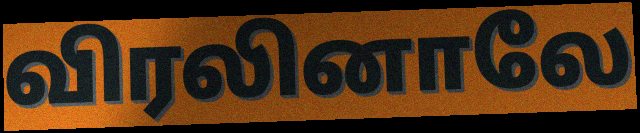
விரலினாலே